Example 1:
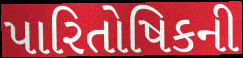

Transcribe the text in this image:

પારિતોષિકની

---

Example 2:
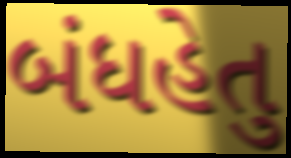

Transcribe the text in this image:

બંધહેતુ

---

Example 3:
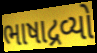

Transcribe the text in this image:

ભાષાદ્રવ્યો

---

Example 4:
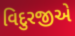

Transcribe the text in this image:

વિદુરજીએ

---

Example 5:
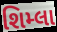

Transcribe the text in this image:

શિમ્લા